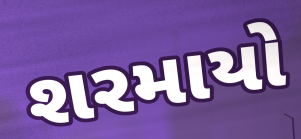
શરમાયો